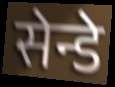
सेन्डे